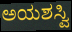
ಅಯಶಸ್ವಿ